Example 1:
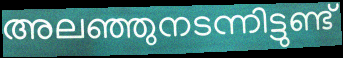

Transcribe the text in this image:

അലഞ്ഞുനടന്നിട്ടുണ്ട്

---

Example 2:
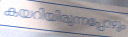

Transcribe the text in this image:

കയറിയിരുന്നപ്പോഴും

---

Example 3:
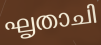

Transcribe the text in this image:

ഘൃതാചി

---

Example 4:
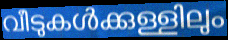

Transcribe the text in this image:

വീടുകൾക്കുള്ളിലും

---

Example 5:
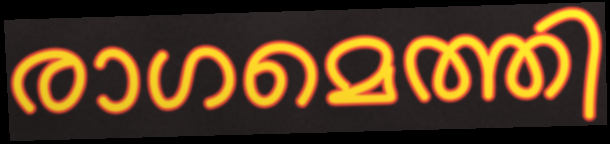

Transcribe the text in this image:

രാഗമെത്തി